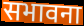
सभावना